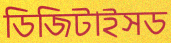
ডিজিটাইসড